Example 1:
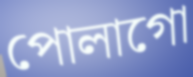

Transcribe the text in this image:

পোলাগো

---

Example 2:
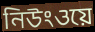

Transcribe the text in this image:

নিউংওয়ে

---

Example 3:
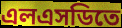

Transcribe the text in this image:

এলএসডিতে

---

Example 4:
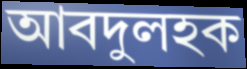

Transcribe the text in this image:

আবদুলহক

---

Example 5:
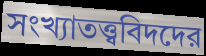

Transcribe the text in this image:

সংখ্যাতত্ত্ববিদদের